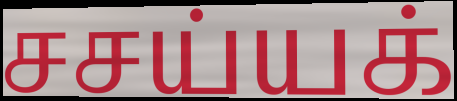
சசய்யக்